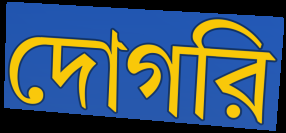
দোগরি